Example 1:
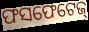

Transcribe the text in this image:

ଫସଫେଟେଜ୍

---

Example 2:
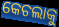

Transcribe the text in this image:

କେଚଲାକୁ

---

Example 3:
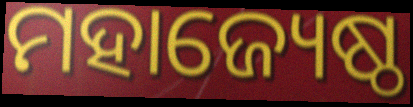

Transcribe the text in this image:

ମହାଜ୍ୟେଷ୍ଠ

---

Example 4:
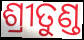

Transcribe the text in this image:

ଶ୍ରୀତୁଣ୍ଡ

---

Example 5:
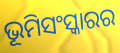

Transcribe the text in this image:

ଭୂମିସଂସ୍କାରର